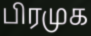
பிரமுக